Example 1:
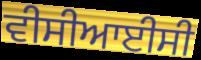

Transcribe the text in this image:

ਵੀਸੀਆਈਸੀ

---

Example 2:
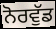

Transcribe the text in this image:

ਨੋਰਵੁੱਡ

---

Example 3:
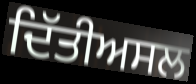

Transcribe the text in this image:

ਦਿੱਤੀਅਸਲ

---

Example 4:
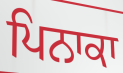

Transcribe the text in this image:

ਪਿਨਾਕਾ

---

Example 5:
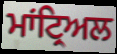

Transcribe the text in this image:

ਮਾਂਟ੍ਰਿਅਲ